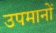
उपमानों